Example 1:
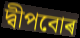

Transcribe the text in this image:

দ্বীপবোৰ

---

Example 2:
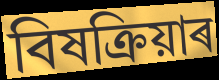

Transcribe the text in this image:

বিষক্ৰিয়াৰ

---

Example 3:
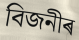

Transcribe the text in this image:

বিজনীৰ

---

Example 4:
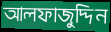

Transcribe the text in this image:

আলফাজুদ্দিন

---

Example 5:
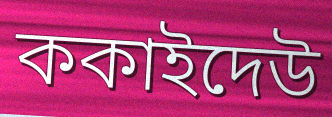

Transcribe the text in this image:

ককাইদেউ